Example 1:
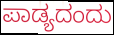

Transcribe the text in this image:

ಪಾಡ್ಯದಂದು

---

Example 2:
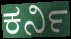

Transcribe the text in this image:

ಕರ್ನಿ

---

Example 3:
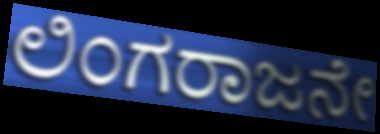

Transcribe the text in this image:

ಲಿಂಗರಾಜನೇ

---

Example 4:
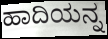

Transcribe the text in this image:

ಹಾದಿಯನ್ನ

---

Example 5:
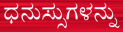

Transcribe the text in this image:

ಧನುಸ್ಸುಗಳನ್ನು